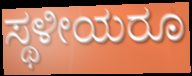
ಸ್ಥಳೀಯರೂ